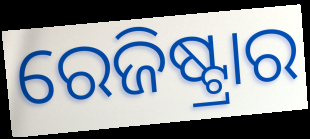
ରେଜିଷ୍ଟ୍ରାର